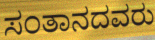
ಸಂತಾನದವರು